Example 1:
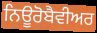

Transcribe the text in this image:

ਨਿਊਰੋਬੈਵੀਅਰ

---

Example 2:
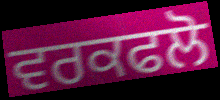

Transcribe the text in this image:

ਵਰਕਫਲੋ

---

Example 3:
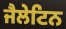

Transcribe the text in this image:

ਜੈਲੇਟਿਨ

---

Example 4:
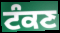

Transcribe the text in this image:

ਟੰਕਣ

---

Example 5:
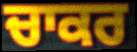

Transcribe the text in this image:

ਚਾਕਰ